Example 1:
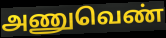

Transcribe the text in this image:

அணுவெண்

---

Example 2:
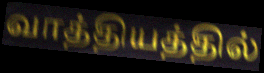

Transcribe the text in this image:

வாத்தியத்தில்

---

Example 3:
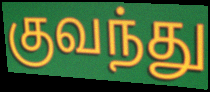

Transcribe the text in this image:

குவந்து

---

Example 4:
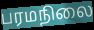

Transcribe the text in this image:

பரமநிலை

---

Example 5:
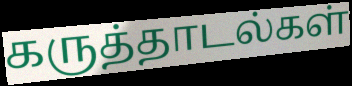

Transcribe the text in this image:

கருத்தாடல்கள்